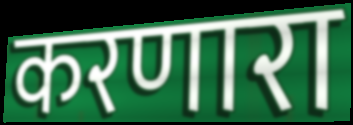
करणारा